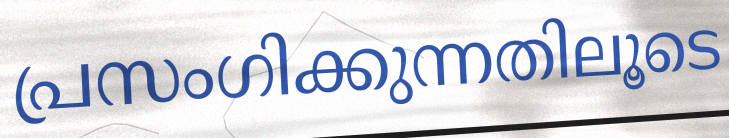
പ്രസംഗിക്കുന്നതിലൂടെ